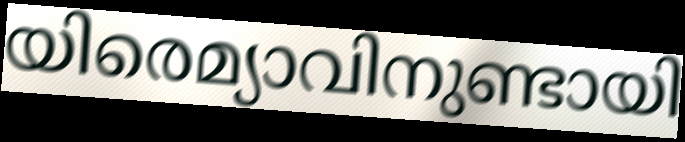
യിരെമ്യാവിനുണ്ടായി